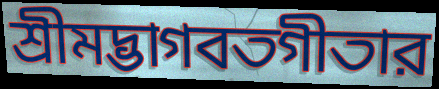
শ্রীমদ্ভাগবতগীতার